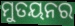
ମୁତୟନର